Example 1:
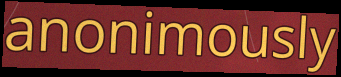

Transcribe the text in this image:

anonimously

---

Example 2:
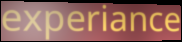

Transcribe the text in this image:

experiance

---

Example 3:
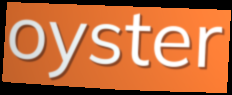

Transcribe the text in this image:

oyster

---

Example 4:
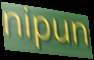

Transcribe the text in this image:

nipun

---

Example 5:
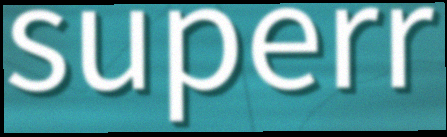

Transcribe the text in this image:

superr